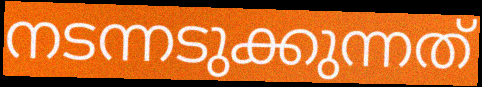
നടന്നടുക്കുന്നത്